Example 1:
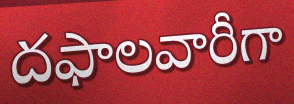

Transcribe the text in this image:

దఫాలవారీగా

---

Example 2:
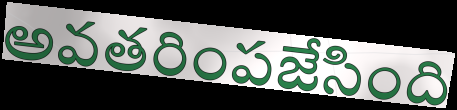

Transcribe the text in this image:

అవతరింపజేసింది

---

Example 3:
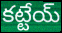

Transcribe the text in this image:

కట్టేయ్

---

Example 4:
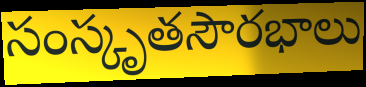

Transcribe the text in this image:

సంస్కృతసౌరభాలు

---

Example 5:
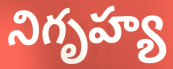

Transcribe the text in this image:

నిగృహ్య